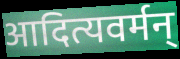
आदित्यवर्मन्